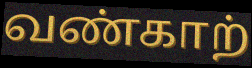
வண்காற்